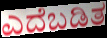
ಎದೆಬಡಿತ